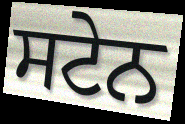
ਸਟੇਨ